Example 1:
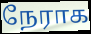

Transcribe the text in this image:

நேராக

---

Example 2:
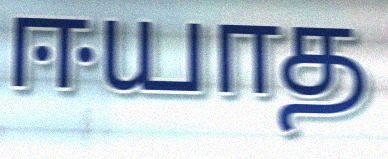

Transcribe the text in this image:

ஈயாத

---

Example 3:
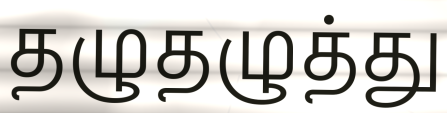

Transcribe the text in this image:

தழுதழுத்து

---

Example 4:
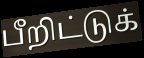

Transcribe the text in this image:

பீறிட்டுக்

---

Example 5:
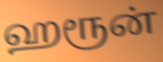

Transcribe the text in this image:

ஹரூன்